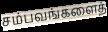
சம்பவங்களைத்